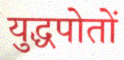
युद्धपोतों